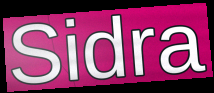
Sidra